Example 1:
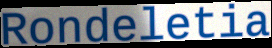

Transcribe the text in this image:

Rondeletia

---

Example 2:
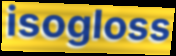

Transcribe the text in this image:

isogloss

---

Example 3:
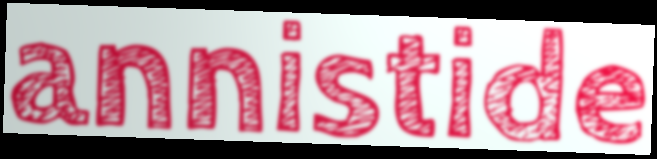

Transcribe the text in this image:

annistide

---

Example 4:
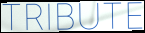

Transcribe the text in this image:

TRIBUTE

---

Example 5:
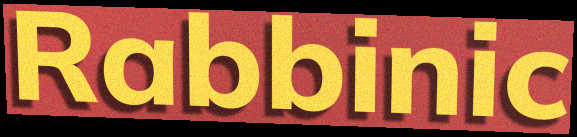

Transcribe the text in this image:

Rabbinic